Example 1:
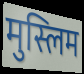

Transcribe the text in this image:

मुस्‍लिम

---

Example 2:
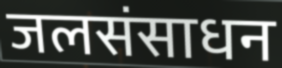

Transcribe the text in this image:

जलसंसाधन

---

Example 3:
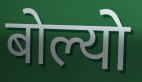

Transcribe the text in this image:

बोल्यो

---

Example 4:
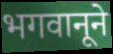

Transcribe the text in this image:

भगवानूने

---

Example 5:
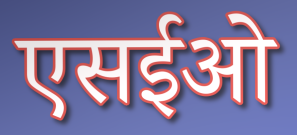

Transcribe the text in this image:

एसईओ